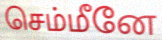
செம்மீனே